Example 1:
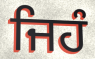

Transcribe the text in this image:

ਜਿਹੰ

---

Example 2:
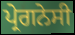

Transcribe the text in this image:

ਪ੍ਰੇਗਨੇਸੀ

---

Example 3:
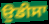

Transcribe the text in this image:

ਉਡੀਸਾ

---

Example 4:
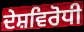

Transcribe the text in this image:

ਦੇਸ਼ਵਿਰੋਧੀ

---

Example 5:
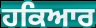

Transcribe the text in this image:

ਹਕਿਆਰ